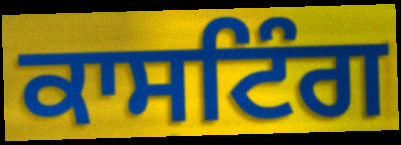
ਕਾਸਟਿੰਗ